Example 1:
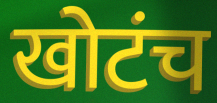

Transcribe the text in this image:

खोटंच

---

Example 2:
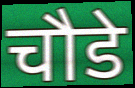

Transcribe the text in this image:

चौडे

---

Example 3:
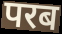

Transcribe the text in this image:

परब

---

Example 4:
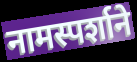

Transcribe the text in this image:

नामस्पर्शाने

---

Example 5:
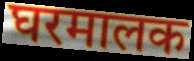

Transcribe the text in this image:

घरमालक